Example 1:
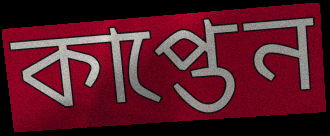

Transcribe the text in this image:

কাপ্তেন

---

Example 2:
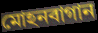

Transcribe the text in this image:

মোহনবাগান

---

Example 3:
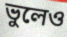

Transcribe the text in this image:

ভুলেও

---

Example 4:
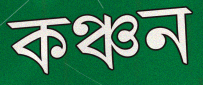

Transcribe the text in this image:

কঞ্চন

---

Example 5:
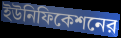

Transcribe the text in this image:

ইউনিফিকেশনের